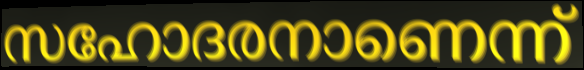
സഹോദരനാണെന്ന്